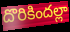
దొరికిందల్లా